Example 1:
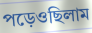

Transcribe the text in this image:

পড়েওছিলাম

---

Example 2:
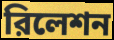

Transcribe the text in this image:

রিলেশন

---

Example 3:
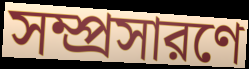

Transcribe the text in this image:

সম্প্রসারণে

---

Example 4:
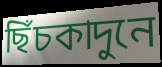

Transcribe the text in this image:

ছিঁচকাদুনে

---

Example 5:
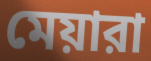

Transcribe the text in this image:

মেয়ারা